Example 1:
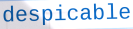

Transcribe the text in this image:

despicable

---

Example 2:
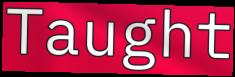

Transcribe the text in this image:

Taught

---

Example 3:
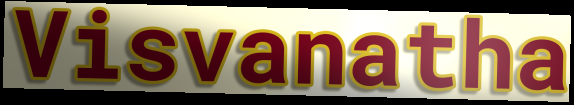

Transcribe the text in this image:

Visvanatha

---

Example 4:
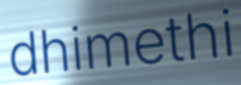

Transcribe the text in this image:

dhimethi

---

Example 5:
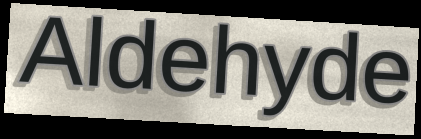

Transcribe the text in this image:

Aldehyde